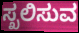
ಸ್ಖಲಿಸುವ